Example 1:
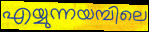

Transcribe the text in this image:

എയ്യുന്നയമ്പിലെ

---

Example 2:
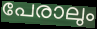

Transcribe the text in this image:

പേരാലും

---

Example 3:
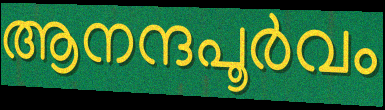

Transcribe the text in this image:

ആനന്ദപൂർവം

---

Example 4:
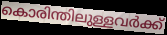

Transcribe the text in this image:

കൊരിന്തിലുള്ളവർക്ക്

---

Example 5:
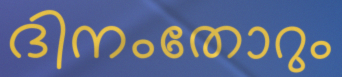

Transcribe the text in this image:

ദിനംതോറും